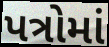
પત્રોમાં